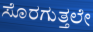
ಸೊರಗುತ್ತಲೇ